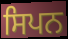
ਸਿਪਨ